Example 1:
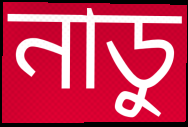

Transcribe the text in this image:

নাডু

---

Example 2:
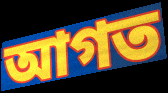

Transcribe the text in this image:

আগত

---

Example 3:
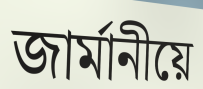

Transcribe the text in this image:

জাৰ্মানীয়ে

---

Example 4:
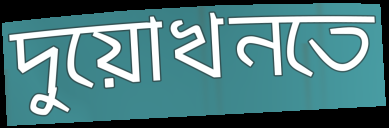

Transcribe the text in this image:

দুয়োখনতে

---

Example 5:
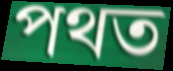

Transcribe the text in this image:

পথত